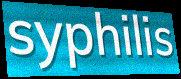
syphilis